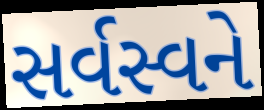
સર્વસ્વને